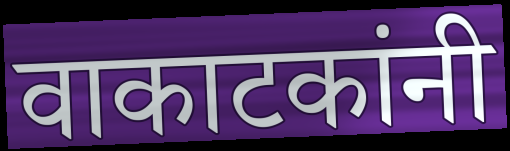
वाकाटकांनी